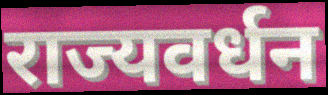
राज्यवर्धन